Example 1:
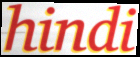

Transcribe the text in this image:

hindi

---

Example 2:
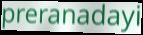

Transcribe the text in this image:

preranadayi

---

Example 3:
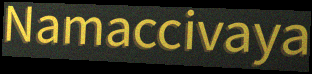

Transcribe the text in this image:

Namaccivaya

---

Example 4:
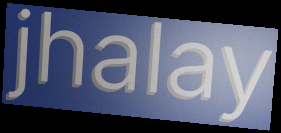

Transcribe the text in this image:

jhalay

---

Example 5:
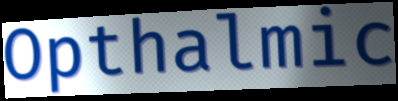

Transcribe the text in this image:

Opthalmic